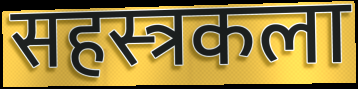
सहस्त्रकला